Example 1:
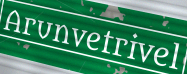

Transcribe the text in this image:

Arunvetrivel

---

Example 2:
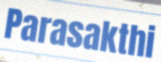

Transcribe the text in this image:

Parasakthi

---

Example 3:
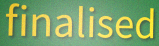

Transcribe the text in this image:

finalised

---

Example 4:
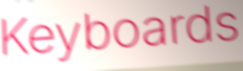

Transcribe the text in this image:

Keyboards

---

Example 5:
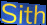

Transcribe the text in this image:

Sith